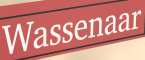
Wassenaar